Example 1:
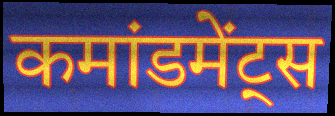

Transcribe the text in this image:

कमांडमेंट्स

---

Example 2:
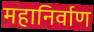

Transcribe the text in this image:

महानिर्वाण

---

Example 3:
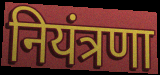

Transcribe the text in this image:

नियंत्रणा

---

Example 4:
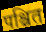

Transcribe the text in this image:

पश्चित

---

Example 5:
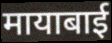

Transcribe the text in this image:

मायाबाई